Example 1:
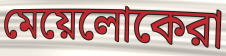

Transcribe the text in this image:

মেয়েলোকেরা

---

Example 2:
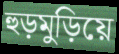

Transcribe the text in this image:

হুড়মুড়িয়ে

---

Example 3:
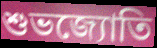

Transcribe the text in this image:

শুভজ্যোতি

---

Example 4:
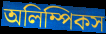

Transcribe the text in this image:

অলিম্পিকস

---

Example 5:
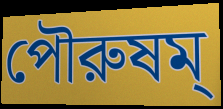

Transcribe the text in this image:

পৌরুষম্